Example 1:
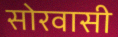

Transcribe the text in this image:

सोरवासी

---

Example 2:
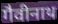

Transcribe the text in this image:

गैवीनाथ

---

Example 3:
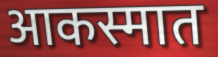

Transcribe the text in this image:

आकस्मात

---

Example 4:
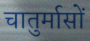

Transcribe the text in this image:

चातुर्मासों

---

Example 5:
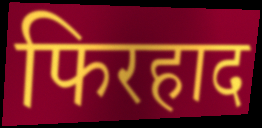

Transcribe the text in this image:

फिरहाद